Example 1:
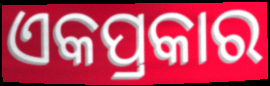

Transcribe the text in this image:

ଏକପ୍ରକାର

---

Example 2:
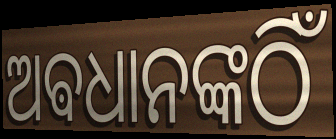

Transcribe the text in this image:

ଅଵଧାନଙ୍କଠିଁ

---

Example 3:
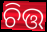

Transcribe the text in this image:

ଚିତ୍ତ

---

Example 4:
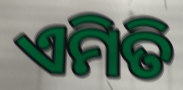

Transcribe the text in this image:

ଏମିତି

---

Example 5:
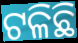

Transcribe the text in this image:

ଟଳିଛି